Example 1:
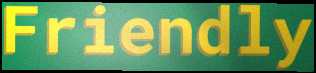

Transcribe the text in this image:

Friendly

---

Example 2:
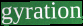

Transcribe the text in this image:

gyration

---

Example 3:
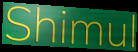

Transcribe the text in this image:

Shimul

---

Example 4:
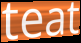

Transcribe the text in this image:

teat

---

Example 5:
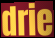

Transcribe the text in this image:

drie